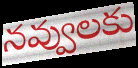
నవ్వులకు